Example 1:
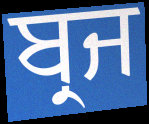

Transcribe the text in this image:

ਬ੍ਰਜ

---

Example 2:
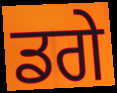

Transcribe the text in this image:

ਡਗੇ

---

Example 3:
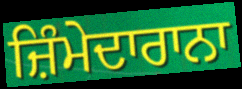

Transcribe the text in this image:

ਜ਼ਿੰਮੇਦਾਰਾਨਾ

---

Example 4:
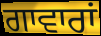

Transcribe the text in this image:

ਗਾਵਾਰਾਂ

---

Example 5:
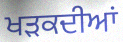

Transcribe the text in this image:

ਖੜਕਦੀਆਂ